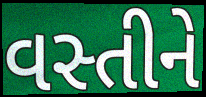
વસ્તીને